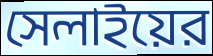
সেলাইয়ের